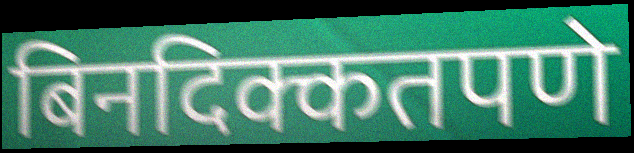
बिनदिक्कतपणे